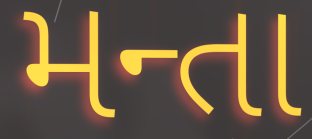
મન્તા